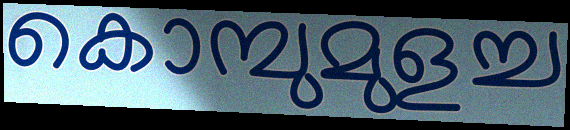
കൊമ്പുമുളച്ച